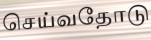
செய்வதோடு